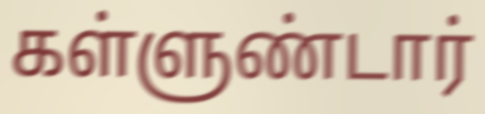
கள்ளுண்டார்